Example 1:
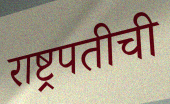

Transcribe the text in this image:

राष्ट्रपतीची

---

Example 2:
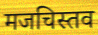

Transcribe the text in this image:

मजचिस्तव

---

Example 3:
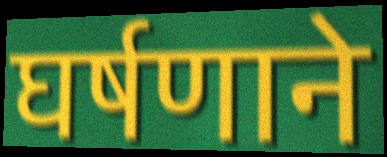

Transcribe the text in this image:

घर्षणाने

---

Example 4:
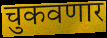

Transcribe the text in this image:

चुकवणार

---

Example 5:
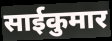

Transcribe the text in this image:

साईकुमार